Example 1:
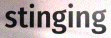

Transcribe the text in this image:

stinging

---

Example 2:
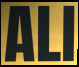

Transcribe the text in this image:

ALI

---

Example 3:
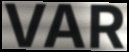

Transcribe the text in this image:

VAR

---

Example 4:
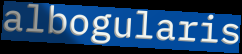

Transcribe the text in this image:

albogularis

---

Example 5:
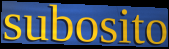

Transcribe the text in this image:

subosito